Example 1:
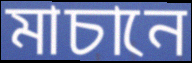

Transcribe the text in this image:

মাচানে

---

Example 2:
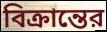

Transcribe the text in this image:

বিক্রান্তের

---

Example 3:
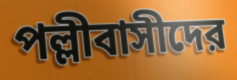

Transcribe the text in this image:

পল্লীবাসীদের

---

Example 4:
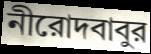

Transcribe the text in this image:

নীরোদবাবুর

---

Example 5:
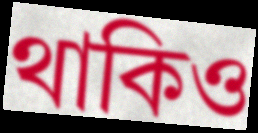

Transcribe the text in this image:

থাকিও